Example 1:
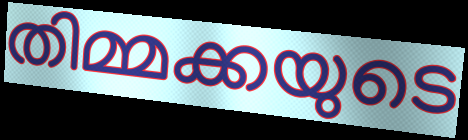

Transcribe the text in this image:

തിമ്മക്കയുടെ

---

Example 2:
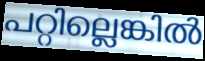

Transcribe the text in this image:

പറ്റില്ലെങ്കിൽ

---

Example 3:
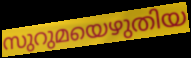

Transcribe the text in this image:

സുറുമയെഴുതിയ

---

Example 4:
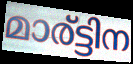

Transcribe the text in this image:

മാര്ട്ടിന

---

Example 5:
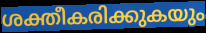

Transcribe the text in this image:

ശക്തീകരിക്കുകയും